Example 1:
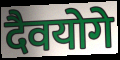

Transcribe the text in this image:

दैवयोगे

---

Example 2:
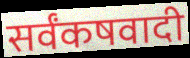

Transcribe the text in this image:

सर्वंकषवादी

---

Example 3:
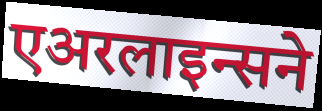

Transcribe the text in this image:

एअरलाइन्सने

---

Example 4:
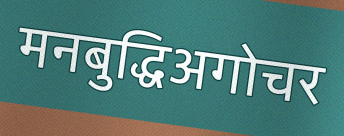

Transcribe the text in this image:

मनबुद्धिअगोचर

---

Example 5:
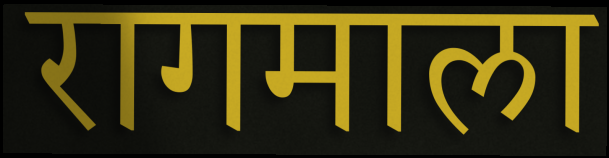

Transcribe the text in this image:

रागमाला